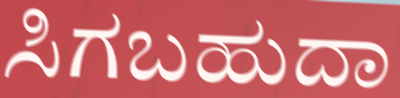
ಸಿಗಬಹುದಾ